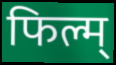
फिल्म्